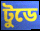
টুডে